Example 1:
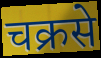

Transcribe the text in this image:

चक्रसे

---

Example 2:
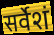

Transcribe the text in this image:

सर्वेशं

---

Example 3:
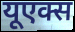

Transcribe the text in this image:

यूएक्स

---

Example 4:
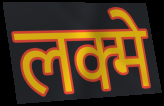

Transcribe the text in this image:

लक्मे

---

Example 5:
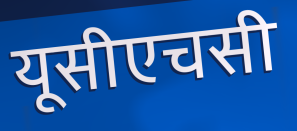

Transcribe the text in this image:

यूसीएचसी